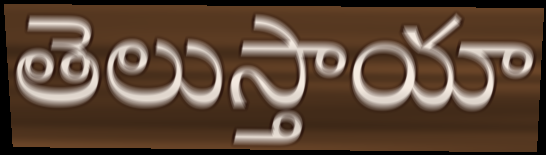
తెలుస్తాయా